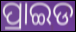
ପ୍ରାଇଡ